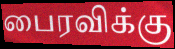
பைரவிக்கு